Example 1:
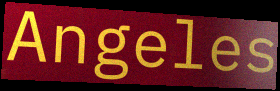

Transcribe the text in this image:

Angeles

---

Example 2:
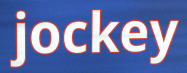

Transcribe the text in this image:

jockey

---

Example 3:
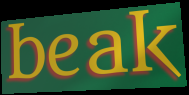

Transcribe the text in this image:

beak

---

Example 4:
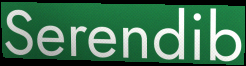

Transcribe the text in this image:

Serendib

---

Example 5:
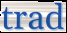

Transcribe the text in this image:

trad